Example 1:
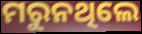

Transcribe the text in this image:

ମରୁନଥିଲେ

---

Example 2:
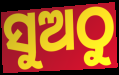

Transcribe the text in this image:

ସୁଅଠୁ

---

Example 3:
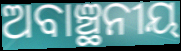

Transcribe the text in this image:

ଅବାଞ୍ଛନୀୟ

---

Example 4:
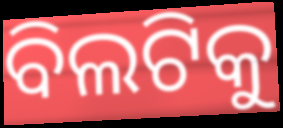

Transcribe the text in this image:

ବିଲଟିକୁ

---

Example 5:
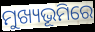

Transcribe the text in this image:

ମୁଖ୍ୟଭୂମିରେ